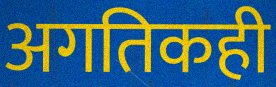
अगतिकही